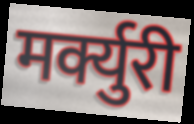
मर्क्युरी